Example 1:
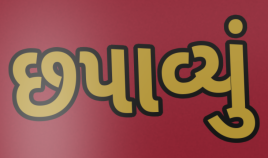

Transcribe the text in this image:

છપાવ્યું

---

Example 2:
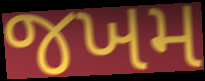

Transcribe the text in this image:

જખમ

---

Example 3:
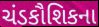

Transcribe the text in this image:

ચંડકૌશિકના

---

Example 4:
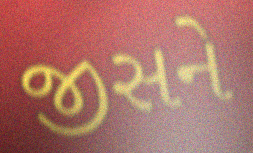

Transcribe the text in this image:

જીસને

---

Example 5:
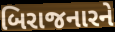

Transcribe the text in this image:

બિરાજનારને